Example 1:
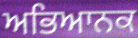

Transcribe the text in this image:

ਅਭਿਆਨਕ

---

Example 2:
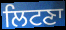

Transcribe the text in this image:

ਲਿਟਣਾ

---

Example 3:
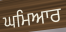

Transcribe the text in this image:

ਘਮਿਆਰ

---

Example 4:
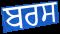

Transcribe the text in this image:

ਬਰਸ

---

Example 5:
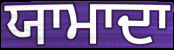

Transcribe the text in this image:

ਯਾਮਾਦਾ